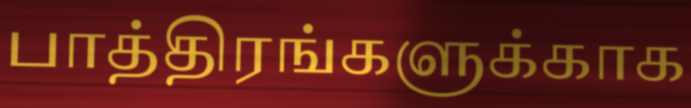
பாத்திரங்களுக்காக